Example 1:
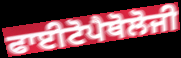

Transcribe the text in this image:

ਫਾਈਟੋਪੈਥੋਲੋਜੀ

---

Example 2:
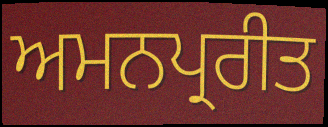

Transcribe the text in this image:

ਅਮਨਪ੍ਰਰੀਤ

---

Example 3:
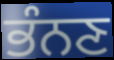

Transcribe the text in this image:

ਭੰਨਣ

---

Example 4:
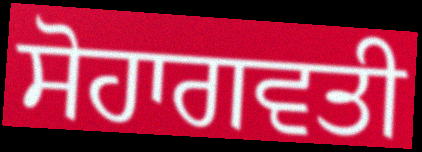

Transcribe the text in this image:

ਸੋਹਾਗਵਤੀ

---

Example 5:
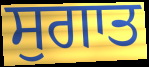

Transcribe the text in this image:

ਸੁਗਾਤ